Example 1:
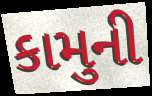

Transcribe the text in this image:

કામુની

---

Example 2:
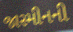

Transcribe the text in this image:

જાસ્મીનની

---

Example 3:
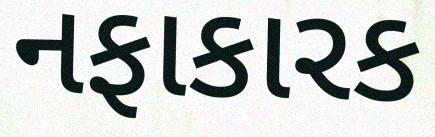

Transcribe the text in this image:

નફાકારક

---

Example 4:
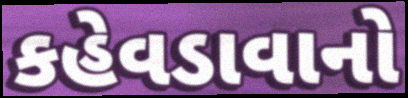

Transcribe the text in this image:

કહેવડાવાનો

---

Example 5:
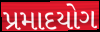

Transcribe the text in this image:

પ્રમાદયોગ